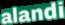
alandi